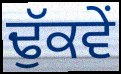
ਢੁੱਕਵੇਂ